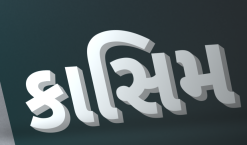
કાસિમ